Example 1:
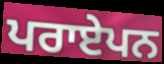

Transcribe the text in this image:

ਪਰਾਏਪਨ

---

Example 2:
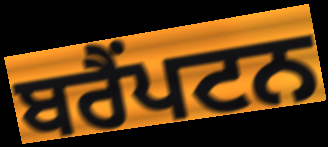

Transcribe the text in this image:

ਬਰੈਂਪਟਨ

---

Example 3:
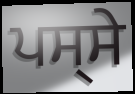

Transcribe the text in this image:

ਪਸ੍ਸੇ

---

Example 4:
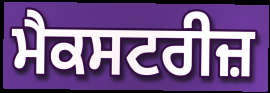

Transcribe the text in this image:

ਮੈਕਸਟਰੀਜ਼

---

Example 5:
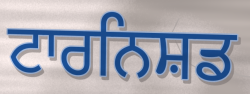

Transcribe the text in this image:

ਟਾਰਨਿਸ਼ਡ